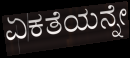
ಏಕತೆಯನ್ನೇ